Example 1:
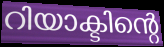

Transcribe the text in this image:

റിയാക്ടിന്റെ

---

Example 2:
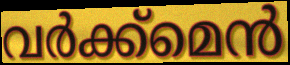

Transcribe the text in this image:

വർക്ക്മെൻ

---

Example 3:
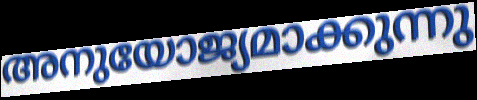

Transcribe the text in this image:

അനുയോജ്യമാക്കുന്നു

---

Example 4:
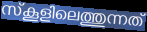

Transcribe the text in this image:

സ്‌കൂളിലെത്തുന്നത്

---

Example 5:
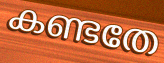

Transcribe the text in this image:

കണ്ടതേ